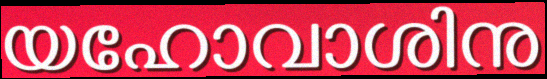
യഹോവാശിനു